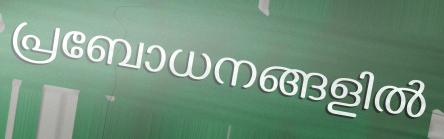
പ്രബോധനങ്ങളിൽ